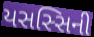
યસસ્સિની